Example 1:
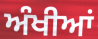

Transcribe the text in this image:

ਅੰਖੀਆਂ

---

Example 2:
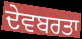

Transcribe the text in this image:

ਦੇਵਬਰਤਾ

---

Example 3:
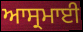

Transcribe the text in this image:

ਆਸ੍ਰਮਾਈ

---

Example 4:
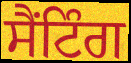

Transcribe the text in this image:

ਸੈਂਟਿੰਗ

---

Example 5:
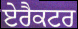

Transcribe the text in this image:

ਏਰੈਕਟਰ